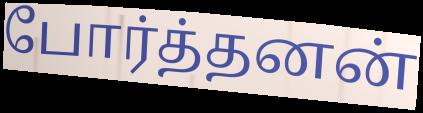
போர்த்தனன்